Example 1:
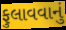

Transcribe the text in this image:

ફુલાવવાનું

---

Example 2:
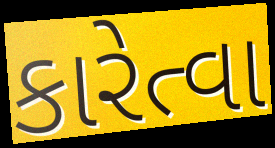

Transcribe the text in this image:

કારેત્વા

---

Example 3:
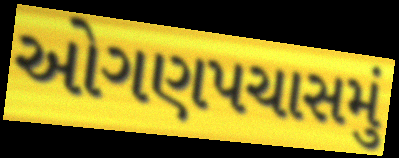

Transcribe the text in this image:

ઓગણપચાસમું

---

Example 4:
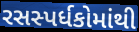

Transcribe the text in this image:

રસસ્પર્ધકોમાંથી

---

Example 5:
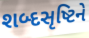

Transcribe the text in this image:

શબ્દસૃષ્ટિને